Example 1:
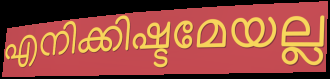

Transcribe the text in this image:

എനിക്കിഷ്ടമേയല്ല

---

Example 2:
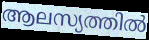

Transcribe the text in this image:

ആലസ്യത്തിൽ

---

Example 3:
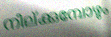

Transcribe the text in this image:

നില്ക്കുമ്പോഴും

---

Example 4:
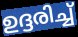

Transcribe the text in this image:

ഉദ്ദരിച്ച്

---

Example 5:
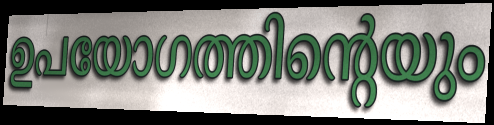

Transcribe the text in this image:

ഉപയോഗത്തിന്റെയും